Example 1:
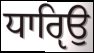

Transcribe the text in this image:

ਧਾਰੵਿਉ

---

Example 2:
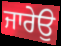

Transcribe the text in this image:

ਜਾਰੇਉ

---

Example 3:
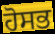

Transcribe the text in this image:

ਹੋਸਭ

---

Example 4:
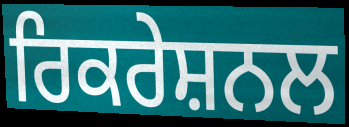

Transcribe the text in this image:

ਰਿਕਰੇਸ਼ਨਲ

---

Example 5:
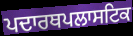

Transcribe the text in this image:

ਪਦਾਰਥਪਲਾਸਟਿਕ